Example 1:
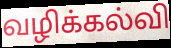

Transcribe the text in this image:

வழிக்கல்வி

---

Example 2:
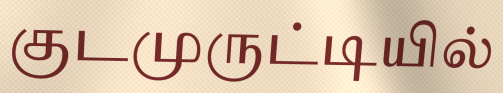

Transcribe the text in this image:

குடமுருட்டியில்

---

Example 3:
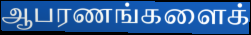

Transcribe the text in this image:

ஆபரணங்களைக்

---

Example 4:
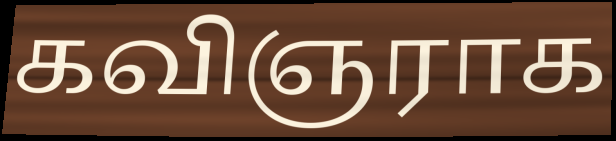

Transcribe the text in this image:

கவிஞராக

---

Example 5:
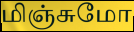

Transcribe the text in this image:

மிஞ்சுமோ